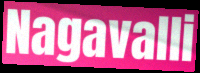
Nagavalli